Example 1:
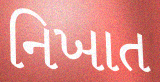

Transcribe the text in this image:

નિખાત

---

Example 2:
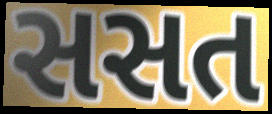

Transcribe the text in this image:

સસત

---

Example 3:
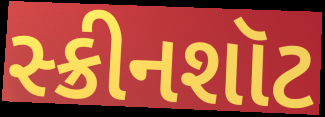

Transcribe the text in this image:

સ્ક્રીનશૉટ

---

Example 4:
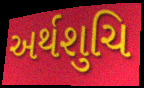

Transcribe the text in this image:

અર્થશુચિ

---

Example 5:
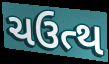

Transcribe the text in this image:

ચઉત્થ